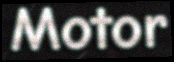
Motor